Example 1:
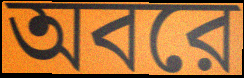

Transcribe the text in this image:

অবরে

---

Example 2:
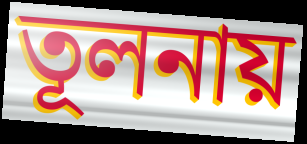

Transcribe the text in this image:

তূলনায়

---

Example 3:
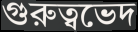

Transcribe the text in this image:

গুরুত্বভেদ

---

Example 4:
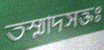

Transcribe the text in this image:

তস্মাদসক্তঃ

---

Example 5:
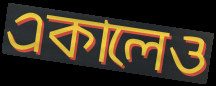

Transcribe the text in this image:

একালেও